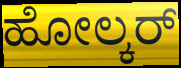
ಹೋಲ್ಕರ್